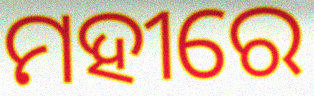
ମହୀରେ